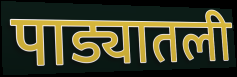
पाड्यातली